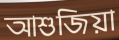
আশুজিয়া